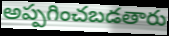
అప్పగించబడతారు